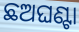
ଛଅଘଣ୍ଟା